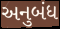
અનુબંધ